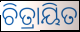
ଚିତ୍ରାୟିତ